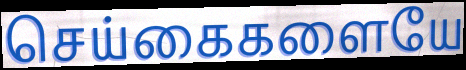
செய்கைகளையே